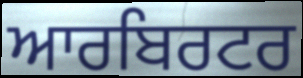
ਆਰਬਿਰਟਰ